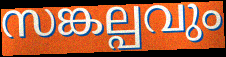
സങ്കല്പവും